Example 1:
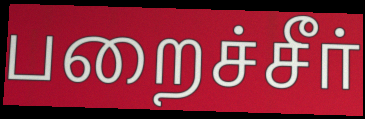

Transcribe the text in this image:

பறைச்சீர்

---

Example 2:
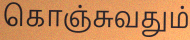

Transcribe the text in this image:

கொஞ்சுவதும்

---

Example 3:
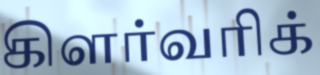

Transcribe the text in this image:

கிளர்வரிக்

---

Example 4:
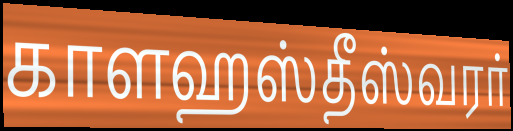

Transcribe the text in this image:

காளஹஸ்தீஸ்வரர்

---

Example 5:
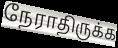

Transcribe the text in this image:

நேராதிருக்க